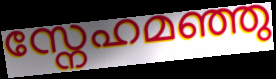
സ്നേഹമഞ്ഞു